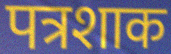
पत्रशाक